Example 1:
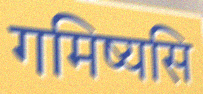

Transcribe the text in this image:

गमिष्यसि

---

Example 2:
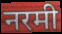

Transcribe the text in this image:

नरमी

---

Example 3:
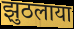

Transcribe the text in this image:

झुठलाया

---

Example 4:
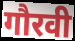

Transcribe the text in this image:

गौरवी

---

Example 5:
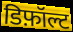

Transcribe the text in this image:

डिफ़ॉल्ट